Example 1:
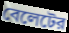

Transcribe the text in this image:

বেলেটের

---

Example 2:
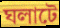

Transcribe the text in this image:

ঘলাটে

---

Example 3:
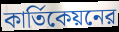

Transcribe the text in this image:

কার্তিকেয়নের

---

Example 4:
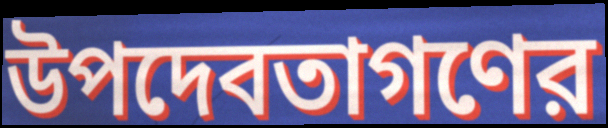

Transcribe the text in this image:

উপদেবতাগণের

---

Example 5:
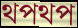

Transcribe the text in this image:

থপথপ